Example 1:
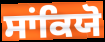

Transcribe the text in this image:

ਸਾਂਕਿਯੋ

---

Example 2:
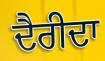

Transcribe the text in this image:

ਦੈਰੀਦਾ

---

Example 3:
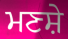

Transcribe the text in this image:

ਮਣਸ਼ੇ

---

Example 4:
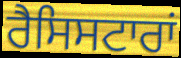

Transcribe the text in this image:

ਰੈਸਿਸਟਾਰਾਂ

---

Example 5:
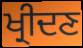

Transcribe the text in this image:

ਖ੍ਰੀਦਣ